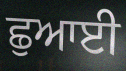
ਛੁਆਈ